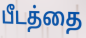
பீடத்தை